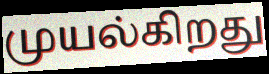
முயல்கிறது